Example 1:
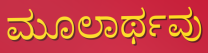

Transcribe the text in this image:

ಮೂಲಾರ್ಥವು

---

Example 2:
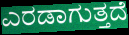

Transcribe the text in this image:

ಎರಡಾಗುತ್ತದೆ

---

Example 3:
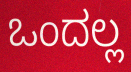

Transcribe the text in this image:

ಒಂದಲ್ಲ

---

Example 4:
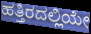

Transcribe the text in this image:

ಹತ್ತಿರದಲ್ಲಿಯೇ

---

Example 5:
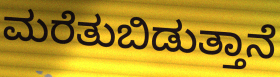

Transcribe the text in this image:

ಮರೆತುಬಿಡುತ್ತಾನೆ